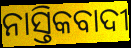
ନାସ୍ତିକବାଦୀ